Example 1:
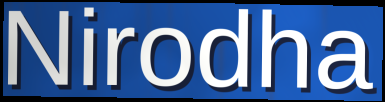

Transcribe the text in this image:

Nirodha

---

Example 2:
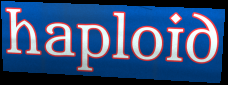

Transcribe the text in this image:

haploid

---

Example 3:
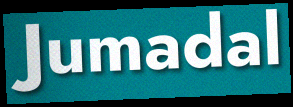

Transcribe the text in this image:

Jumadal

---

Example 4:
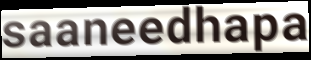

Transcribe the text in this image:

saaneedhapa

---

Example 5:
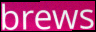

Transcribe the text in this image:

brews